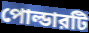
পোল্ডারটি